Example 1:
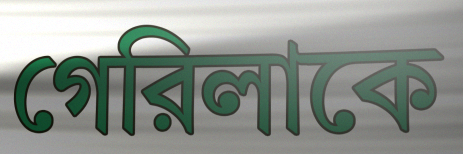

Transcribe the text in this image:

গেরিলাকে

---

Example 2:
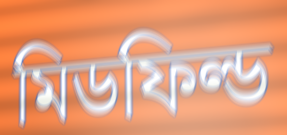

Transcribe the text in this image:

মিডফিল্ড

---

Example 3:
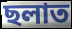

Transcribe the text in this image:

ছলাত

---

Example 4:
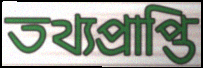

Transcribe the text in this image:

তথ্যপ্রাপ্তি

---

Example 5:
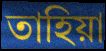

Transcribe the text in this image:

তাহিয়া